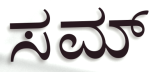
ಸಮ್